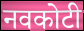
नवकोटी